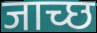
जाच्छ